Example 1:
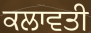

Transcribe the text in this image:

ਕਲਾਵਤੀ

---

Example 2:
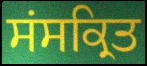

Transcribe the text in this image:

ਸਂਸਕ੍ਰਿਤ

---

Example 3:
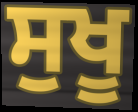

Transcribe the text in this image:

ਸੁਖੂ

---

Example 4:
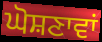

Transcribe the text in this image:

ਘੋਸ਼ਣਾਵਾਂ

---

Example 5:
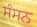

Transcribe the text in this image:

ਸੰਸਨ